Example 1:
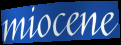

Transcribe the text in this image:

miocene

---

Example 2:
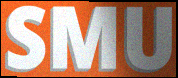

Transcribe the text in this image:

SMU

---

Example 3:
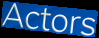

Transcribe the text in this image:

Actors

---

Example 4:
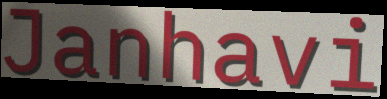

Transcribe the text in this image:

Janhavi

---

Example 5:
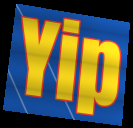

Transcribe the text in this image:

Yip